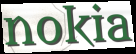
nokia